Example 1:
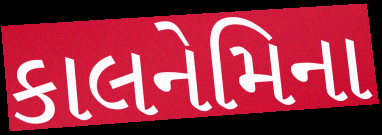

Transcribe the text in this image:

કાલનેમિના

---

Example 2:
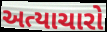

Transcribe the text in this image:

અત્યાચારો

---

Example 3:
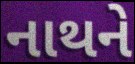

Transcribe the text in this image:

નાથને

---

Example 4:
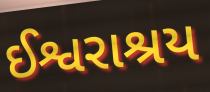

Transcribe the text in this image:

ઈશ્વરાશ્રય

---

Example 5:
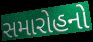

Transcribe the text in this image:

સમારોહનો